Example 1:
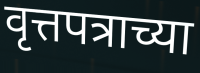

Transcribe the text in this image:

वृत्तपत्राच्या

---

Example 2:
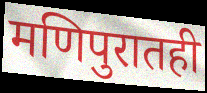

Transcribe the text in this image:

मणिपुरातही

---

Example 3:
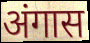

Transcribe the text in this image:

अंगास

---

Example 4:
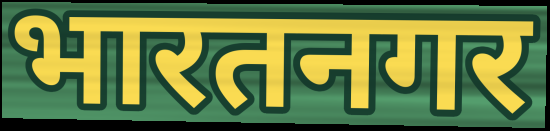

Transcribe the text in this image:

भारतनगर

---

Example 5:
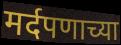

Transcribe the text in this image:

मर्दपणाच्या